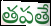
తపతే